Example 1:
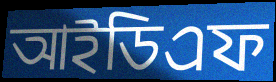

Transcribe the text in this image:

আইডিএফ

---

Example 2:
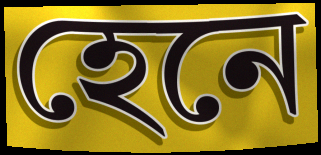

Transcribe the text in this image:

হেনে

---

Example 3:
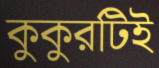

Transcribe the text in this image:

কুকুরটিই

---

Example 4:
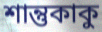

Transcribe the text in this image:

শান্তুকাকু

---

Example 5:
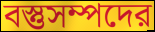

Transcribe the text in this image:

বস্তুসম্পদের